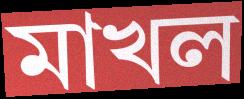
মাখল